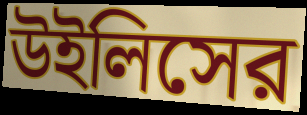
উইলিসের